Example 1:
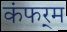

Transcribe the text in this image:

कंफर्म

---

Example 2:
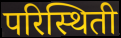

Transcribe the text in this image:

परिस्थिती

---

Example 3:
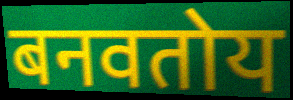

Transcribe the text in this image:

बनवतोय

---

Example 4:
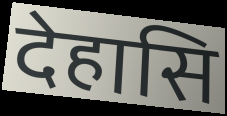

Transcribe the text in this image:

देहासि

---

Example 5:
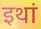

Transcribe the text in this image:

इथां